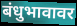
बंधुभावावर